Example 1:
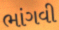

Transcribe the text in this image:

ભાંગવી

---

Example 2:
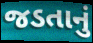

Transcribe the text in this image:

જડતાનું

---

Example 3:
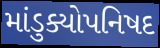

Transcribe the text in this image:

માંડુક્યોપનિષદ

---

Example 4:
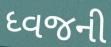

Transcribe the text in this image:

ધ્વજની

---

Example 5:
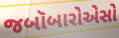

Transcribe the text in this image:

જબૉબારોએસો